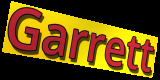
Garrett